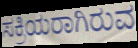
ಸಕ್ರಿಯರಾಗಿರುವ